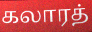
கலாரத்